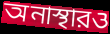
অনাস্থারও